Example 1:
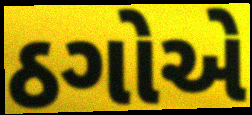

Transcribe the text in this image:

ઠગોએ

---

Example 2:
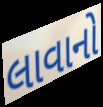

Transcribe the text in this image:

લાવાનો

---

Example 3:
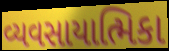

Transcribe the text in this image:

વ્યવસાયાત્મિકા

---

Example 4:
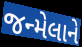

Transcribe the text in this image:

જન્મેલાને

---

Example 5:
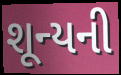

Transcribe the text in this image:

શૂન્યની